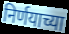
निर्णयाच्या